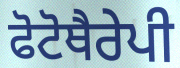
ਫੋਟੋਥੈਰੇਪੀ